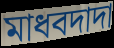
মাধবদাদা